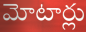
మోటార్లు